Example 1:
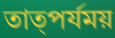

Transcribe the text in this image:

তাত্পর্যময়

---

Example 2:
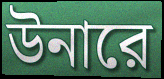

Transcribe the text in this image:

উনারে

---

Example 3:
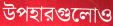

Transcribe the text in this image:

উপহারগুলোও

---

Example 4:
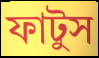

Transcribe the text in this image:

ফাটুস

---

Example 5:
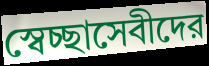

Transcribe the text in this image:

স্বেচ্ছাসেবীদের